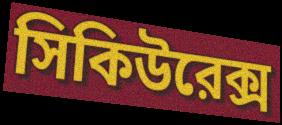
সিকিউরেক্স